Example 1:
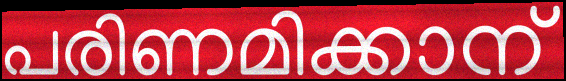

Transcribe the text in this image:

പരിണമിക്കാന്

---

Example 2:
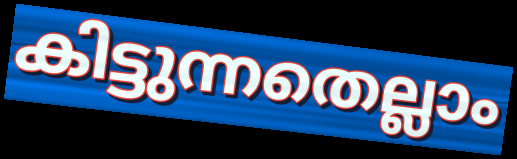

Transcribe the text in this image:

കിട്ടുന്നതെല്ലാം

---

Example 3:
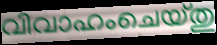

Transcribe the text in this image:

വിവാഹംചെയ്തു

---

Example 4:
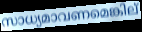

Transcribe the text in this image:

സാധ്യമാവണമെങ്കില്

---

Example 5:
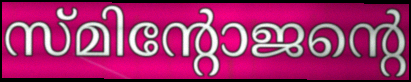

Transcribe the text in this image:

സ്മിന്റോജന്റെ